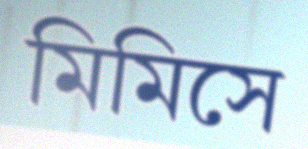
মিমিসে